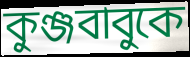
কুঞ্জবাবুকে